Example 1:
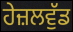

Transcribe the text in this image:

ਹੇਜ਼ਲਵੁੱਡ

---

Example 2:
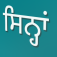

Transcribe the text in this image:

ਸਿਨ੍ਹਾਂ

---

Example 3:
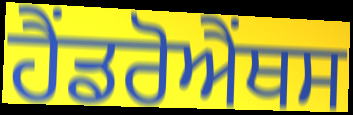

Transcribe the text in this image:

ਹੈਂਡਰੋਐਂਥਸ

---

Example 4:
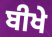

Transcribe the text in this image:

ਬੀਖੇ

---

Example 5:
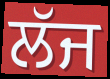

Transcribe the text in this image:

ਲੱਜ